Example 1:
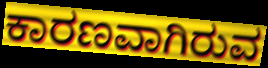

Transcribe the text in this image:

ಕಾರಣವಾಗಿರುವ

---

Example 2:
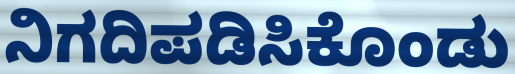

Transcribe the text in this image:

ನಿಗದಿಪಡಿಸಿಕೊಂಡು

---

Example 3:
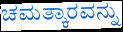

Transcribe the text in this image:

ಚಮತ್ಕಾರವನ್ನು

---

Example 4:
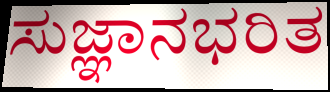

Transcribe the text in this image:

ಸುಜ್ಞಾನಭರಿತ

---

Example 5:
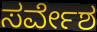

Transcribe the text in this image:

ಸರ್ವೇಶ